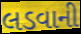
લડવાની